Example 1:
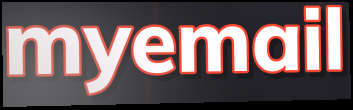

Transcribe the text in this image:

myemail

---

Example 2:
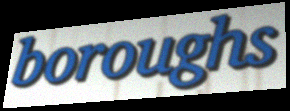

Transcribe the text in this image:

boroughs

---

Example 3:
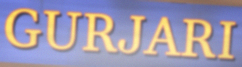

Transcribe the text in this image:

GURJARI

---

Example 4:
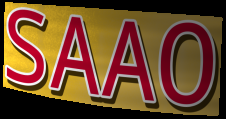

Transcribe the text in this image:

SAAO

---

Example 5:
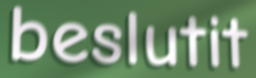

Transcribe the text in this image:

beslutit